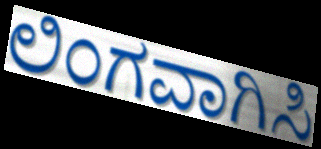
ಲಿಂಗವಾಗಿಸಿ